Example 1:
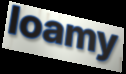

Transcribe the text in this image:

loamy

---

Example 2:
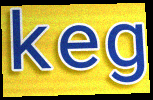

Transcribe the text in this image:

keg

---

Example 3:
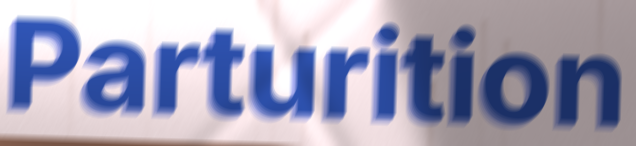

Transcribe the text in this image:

Parturition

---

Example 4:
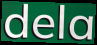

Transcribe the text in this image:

dela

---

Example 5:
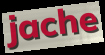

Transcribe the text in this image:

jache